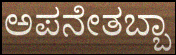
ಅಪನೇತಬ್ಬಾ